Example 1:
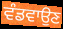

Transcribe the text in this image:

ਵੰਡਵਾਉਣ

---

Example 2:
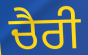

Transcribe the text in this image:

ਚੈਰੀ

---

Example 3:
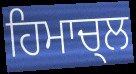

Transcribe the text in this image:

ਹਿਮਾਚ੍ਲ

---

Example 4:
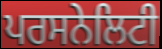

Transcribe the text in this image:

ਪਰਸਨੇਲਿਟੀ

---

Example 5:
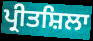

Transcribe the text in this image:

ਪ੍ਰੀਤਸ਼ਿਲਾ